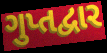
ગુપ્તદ્વાર